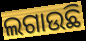
ଲଗାଉଛି